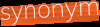
synonym